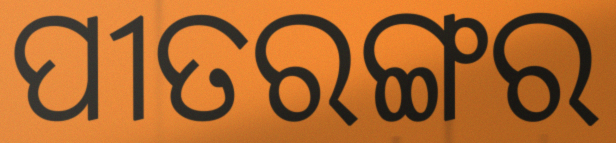
ପୀତରଙ୍ଗର